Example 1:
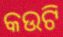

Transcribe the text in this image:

କଉଟି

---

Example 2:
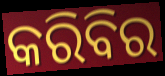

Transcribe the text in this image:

କରିବିର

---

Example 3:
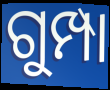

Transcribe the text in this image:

ଗୁମ୍ପା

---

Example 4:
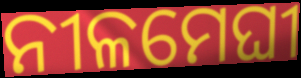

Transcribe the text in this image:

ନୀଳମେଘୀ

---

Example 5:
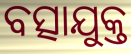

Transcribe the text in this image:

ବତ୍ସାଯୁକ୍ତ